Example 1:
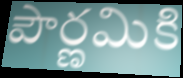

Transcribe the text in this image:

పౌర్ణమికి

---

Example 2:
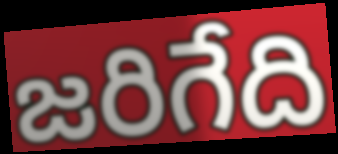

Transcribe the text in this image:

జరిగేది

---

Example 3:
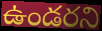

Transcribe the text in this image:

ఉండరని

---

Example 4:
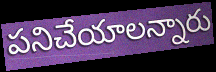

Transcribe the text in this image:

పనిచేయాలన్నారు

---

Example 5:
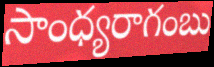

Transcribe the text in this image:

సాంధ్యరాగంబు